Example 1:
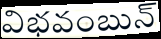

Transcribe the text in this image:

విభవంబున్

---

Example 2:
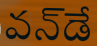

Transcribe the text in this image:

వన్‌డే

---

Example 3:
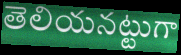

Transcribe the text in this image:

తెలియనట్టుగా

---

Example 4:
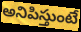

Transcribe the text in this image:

అనిపిస్తుంటే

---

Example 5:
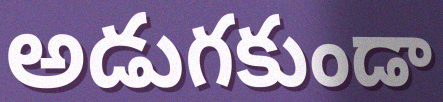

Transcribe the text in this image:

అడుగకుండా